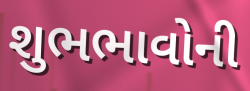
શુભભાવોની